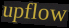
upflow